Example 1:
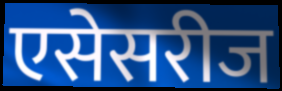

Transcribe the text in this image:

एसेसरीज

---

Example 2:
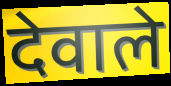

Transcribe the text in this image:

देवाले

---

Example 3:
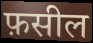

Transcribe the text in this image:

फ़सील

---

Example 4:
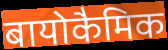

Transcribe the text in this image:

बायोकैमिक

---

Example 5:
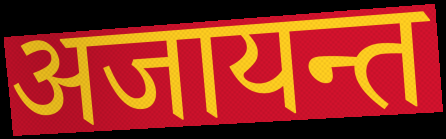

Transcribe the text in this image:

अजायन्त